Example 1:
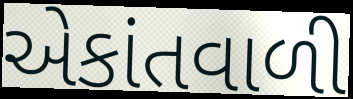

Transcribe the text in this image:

એકાંતવાળી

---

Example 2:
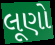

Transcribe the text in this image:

લૂણો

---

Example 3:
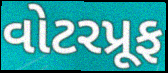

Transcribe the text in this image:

વોટરપ્રૂફ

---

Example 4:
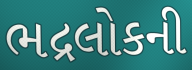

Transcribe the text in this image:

ભદ્રલોકની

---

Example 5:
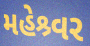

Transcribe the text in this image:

મહેશ્ર્વર